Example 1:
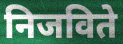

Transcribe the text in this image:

निजविते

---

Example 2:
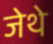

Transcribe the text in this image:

जेथे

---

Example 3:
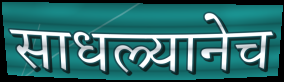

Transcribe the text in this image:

साधल्यानेच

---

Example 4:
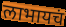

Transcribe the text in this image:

लाभायचं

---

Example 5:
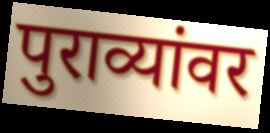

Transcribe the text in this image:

पुराव्यांवर